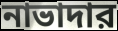
নাভাদার